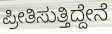
ಪ್ರೀತಿಸುತ್ತಿದ್ದೇನೆ